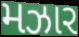
મઝાર